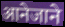
आनेजाने